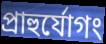
প্রাহুর্যোগং